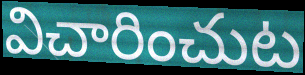
విచారించుట